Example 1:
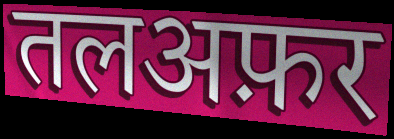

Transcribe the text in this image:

तलअफ़र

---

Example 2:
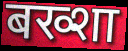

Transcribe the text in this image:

बख्शा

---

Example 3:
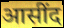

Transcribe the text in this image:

आसींद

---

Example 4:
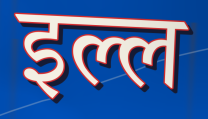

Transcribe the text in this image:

इल्ल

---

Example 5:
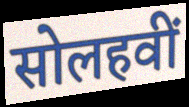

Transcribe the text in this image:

सोलहवीं